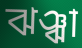
ঝঞ্ঝা